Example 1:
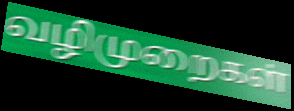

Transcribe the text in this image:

வழிமுறைகள்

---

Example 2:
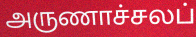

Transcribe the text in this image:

அருணாச்சலப்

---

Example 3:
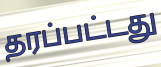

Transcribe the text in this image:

தரப்பட்டது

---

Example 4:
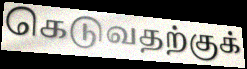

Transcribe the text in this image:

கெடுவதற்குக்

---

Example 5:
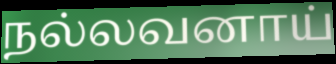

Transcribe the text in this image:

நல்லவனாய்